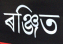
ৰঞ্জিত